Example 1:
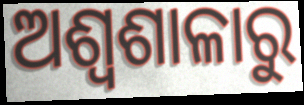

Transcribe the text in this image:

ଅଶ୍ୱଶାଳାରୁ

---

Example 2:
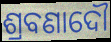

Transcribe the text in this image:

ଶ୍ରବଣାଦୌ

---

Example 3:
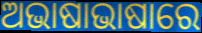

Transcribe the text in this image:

ଅଭାଷାଭାଷାରେ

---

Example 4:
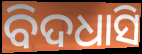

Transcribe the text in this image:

ବିଦଧାସି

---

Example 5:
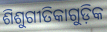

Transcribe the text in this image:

ଶିଶୁଗୀତିକାଗୁଡ଼ିକ